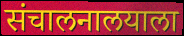
संचालनालयाला